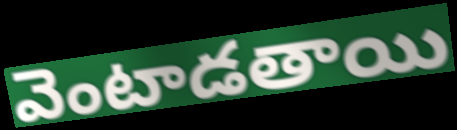
వెంటాడతాయి